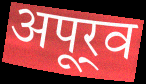
अपूर्व